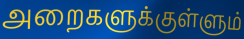
அறைகளுக்குள்ளும்